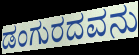
ಡಂಗುರದವನು